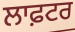
ਲਾਫ਼ਟਰ